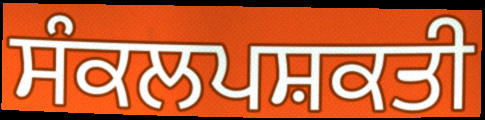
ਸੰਕਲਪਸ਼ਕਤੀ